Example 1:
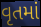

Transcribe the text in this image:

વૃતમાં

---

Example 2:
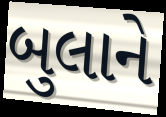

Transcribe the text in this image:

બુલાને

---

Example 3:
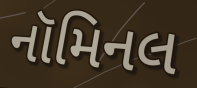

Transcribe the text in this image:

નૉમિનલ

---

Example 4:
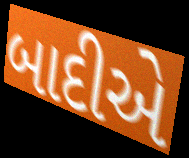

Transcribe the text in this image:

બાદીએ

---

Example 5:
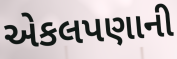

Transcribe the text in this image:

એકલપણાની